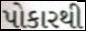
પોકારથી